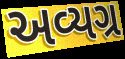
અવ્યગ્ર